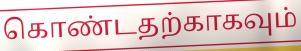
கொண்டதற்காகவும்